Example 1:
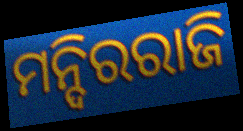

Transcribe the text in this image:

ମନ୍ଦିରରାଜି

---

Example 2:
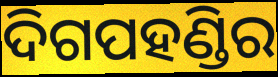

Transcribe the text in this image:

ଦିଗପହଣ୍ଡିର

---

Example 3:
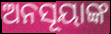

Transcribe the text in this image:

ଅନସୂୟାଙ୍କ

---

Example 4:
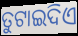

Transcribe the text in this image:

ତୁଟାଇଦିଏ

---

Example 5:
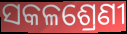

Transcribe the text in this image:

ସକଳଶ୍ରେଣୀ